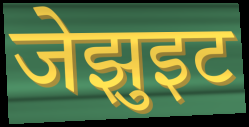
जेझुइट